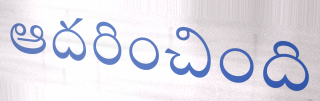
ఆదరించింది